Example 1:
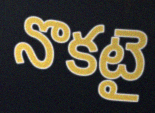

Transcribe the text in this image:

నొకటై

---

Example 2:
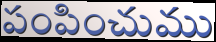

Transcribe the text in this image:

పంపించుము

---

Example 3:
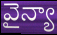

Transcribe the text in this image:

వైన్యా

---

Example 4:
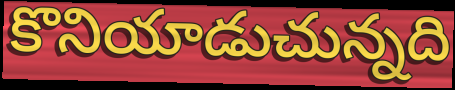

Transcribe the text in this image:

కొనియాడుచున్నది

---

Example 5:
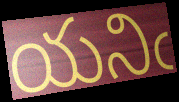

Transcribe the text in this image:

యనిఁ